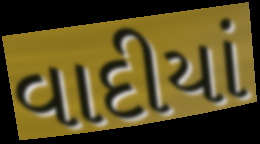
વાદીયાં